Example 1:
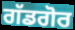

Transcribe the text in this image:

ਗੱਡਗੋਰ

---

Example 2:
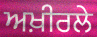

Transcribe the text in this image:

ਅਖ਼ੀਰਲੇ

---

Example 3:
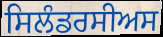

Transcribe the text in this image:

ਸਿਲੰਡਰਸੀਅਸ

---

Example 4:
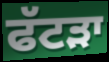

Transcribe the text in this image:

ਫੱਟੜਾ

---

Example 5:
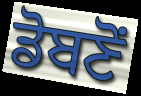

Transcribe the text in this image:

ਡੋਬਣੋਂ